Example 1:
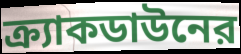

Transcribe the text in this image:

ক্র্যাকডাউনের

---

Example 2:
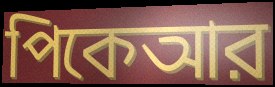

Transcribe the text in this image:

পিকেআর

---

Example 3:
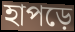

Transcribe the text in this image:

হাপড়ে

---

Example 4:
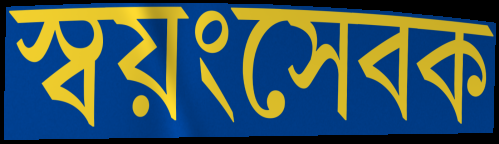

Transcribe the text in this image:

স্বয়ংসেবক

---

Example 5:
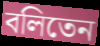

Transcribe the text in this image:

বলিতেন